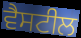
ਵੈਸਟੀਲ